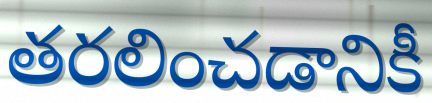
తరలించడానికీ